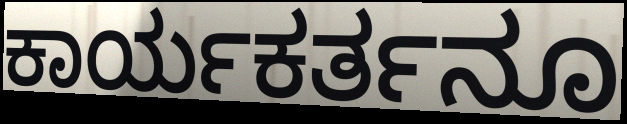
ಕಾರ್ಯಕರ್ತನೂ